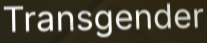
Transgender